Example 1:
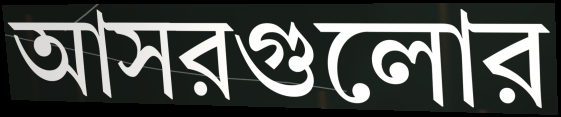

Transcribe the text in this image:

আসরগুলোর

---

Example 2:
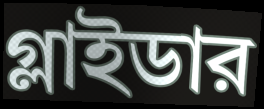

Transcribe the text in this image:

গ্লাইডার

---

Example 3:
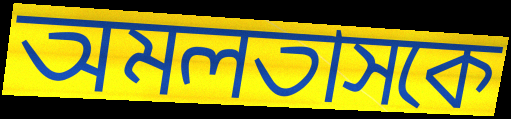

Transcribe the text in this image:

অমলতাসকে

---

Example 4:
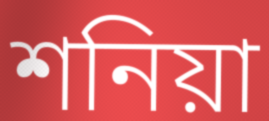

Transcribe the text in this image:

শনিয়া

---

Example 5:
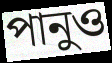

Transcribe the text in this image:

পানুও